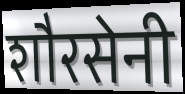
शौरसेनी